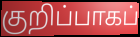
குறிப்பாகப்